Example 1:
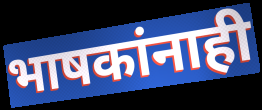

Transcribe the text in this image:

भाषकांनाही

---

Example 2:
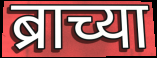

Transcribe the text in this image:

ब्राच्या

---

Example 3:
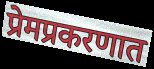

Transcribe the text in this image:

प्रेमप्रकरणात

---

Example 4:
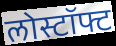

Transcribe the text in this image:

लोस्टॉफ्ट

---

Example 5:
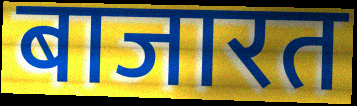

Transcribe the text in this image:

बाजारत